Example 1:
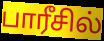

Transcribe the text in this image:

பாரீசில்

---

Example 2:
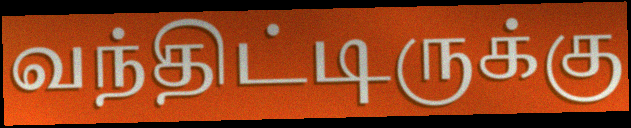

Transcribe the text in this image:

வந்திட்டிருக்கு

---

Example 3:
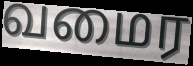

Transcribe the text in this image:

வமைர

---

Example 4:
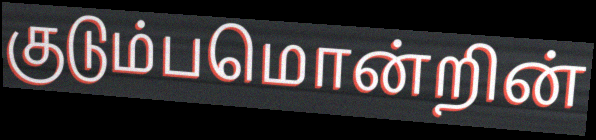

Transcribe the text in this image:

குடும்பமொன்றின்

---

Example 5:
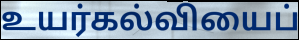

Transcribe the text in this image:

உயர்கல்வியைப்